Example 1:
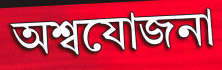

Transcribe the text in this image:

অশ্বযোজনা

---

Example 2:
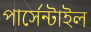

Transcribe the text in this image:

পার্সেন্টাইল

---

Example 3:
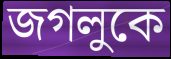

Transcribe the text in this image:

জগলুকে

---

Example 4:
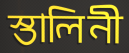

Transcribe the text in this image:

স্তালিনী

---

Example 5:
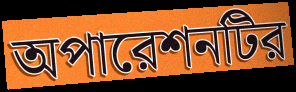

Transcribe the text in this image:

অপারেশনটির